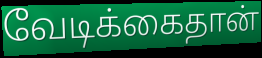
வேடிக்கைதான்